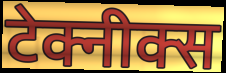
टेक्नीक्स